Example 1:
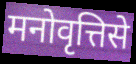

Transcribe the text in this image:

मनोवृत्तिसे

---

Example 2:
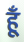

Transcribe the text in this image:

हूँं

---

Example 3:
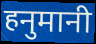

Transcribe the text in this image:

हनुमानी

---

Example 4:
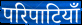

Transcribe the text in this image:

परिपाटियाँ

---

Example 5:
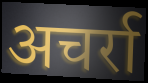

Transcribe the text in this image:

अचर्रा